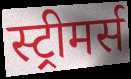
स्ट्रीमर्स